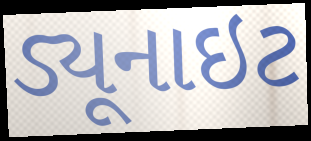
ડ્યૂનાઇટ